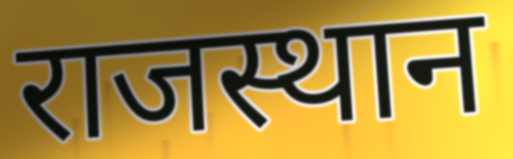
राजस्थान